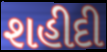
શહીદી